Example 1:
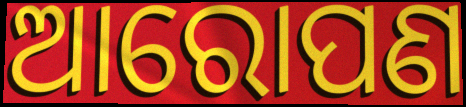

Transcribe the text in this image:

ଆରୋପଣ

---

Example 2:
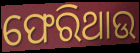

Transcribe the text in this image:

ଫେରିଥାଉ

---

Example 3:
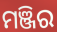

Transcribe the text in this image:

ମଞ୍ଜିର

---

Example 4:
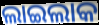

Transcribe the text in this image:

ଲାଇଲାକ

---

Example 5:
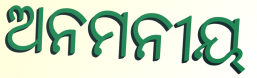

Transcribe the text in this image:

ଅନମନୀୟ